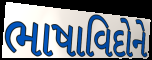
ભાષાવિદોને